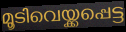
മൂടിവെയ്ക്കപ്പെട്ട